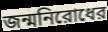
জন্মনিরোধের